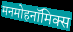
मनमोहनॉमिक्स